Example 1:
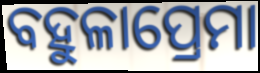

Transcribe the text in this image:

ବହୁଳାପ୍ରେମା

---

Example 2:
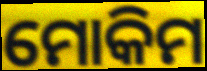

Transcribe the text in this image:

ମୋକିମ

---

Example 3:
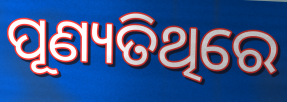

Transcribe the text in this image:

ପୂଣ୍ୟତିଥିରେ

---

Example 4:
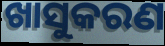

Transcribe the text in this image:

ଖାସୁକରଣ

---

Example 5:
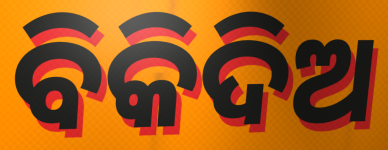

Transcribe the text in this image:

ବିକିଦିଅ